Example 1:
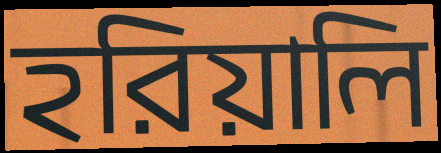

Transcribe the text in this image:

হরিয়ালি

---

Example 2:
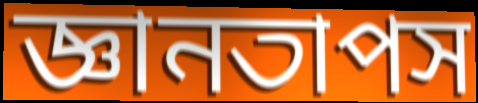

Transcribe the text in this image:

জ্ঞানতাপস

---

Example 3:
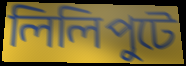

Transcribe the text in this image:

লিলিপুটে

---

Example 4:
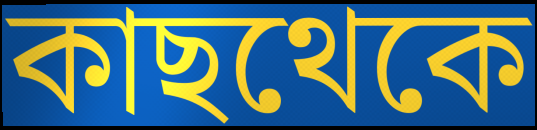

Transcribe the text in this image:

কাছথেকে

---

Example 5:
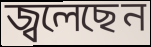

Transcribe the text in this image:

জ্বলেছেন